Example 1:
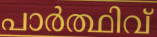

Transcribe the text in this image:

പാർത്ഥിവ്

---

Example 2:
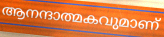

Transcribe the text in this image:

ആനന്ദാത്മകവുമാണ്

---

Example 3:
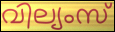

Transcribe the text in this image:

വില്യംസ്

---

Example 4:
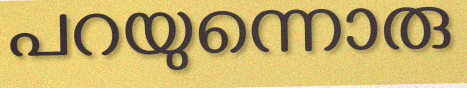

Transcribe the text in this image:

പറയുന്നൊരു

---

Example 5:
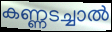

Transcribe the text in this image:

കണ്ണടച്ചാൽ